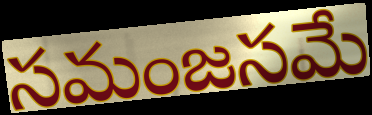
సమంజసమే